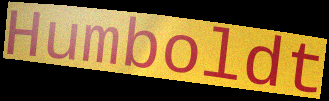
Humboldt